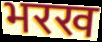
भरख